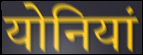
योनियां